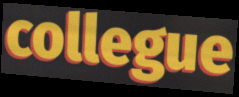
collegue